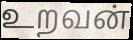
உறவன்